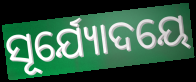
ସୂର୍ଯ୍ୟୋଦୟେ